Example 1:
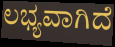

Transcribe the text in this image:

ಲಭ್ಯವಾಗಿದೆ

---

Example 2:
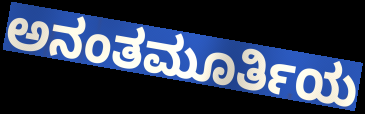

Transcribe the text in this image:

ಅನಂತಮೂರ್ತಿಯ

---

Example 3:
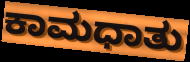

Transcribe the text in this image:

ಕಾಮಧಾತು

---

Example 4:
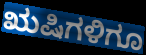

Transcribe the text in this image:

ಋಷಿಗಳಿಗೂ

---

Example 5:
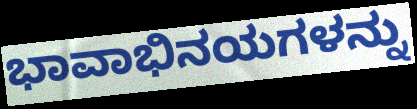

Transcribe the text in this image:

ಭಾವಾಭಿನಯಗಳನ್ನು